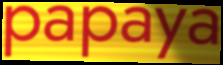
papaya